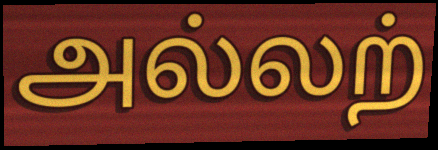
அல்லற்